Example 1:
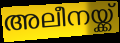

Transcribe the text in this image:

അലീനയ്ക്ക്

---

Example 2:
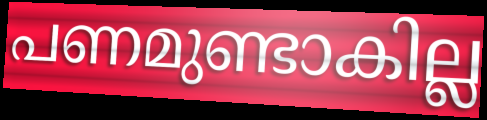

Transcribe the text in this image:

പണമുണ്ടാകില്ല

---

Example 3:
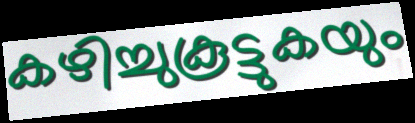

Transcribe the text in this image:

കഴിച്ചുകൂട്ടുകയും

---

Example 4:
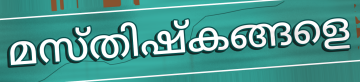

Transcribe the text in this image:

മസ്തിഷ്കങ്ങളെ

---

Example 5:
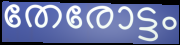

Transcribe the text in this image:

തേരോട്ടം